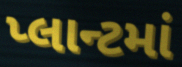
પ્લાન્ટમાં